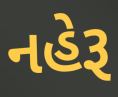
નહેરૂ